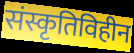
संस्कृतिविहीन